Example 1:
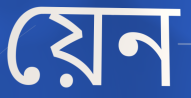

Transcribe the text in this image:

য়েন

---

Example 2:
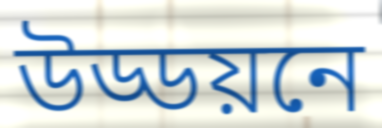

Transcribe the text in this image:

উড্ডয়নে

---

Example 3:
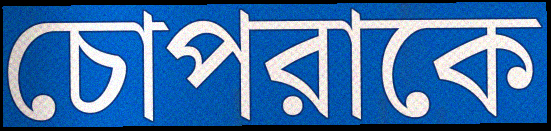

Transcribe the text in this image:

চোপরাকে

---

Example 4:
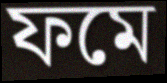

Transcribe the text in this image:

ফমে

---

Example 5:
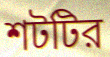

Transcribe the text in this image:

শটটির